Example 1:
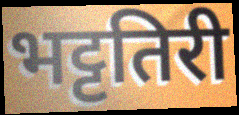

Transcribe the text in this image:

भट्टतिरी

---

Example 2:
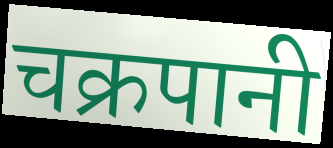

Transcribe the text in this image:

चक्रपानी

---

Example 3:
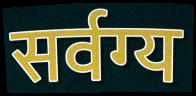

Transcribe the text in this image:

सर्वग्य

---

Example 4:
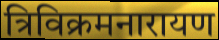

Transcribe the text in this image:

त्रिविक्रमनारायण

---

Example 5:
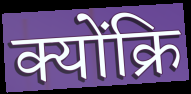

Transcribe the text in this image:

क्योंक्रि